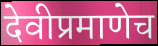
देवीप्रमाणेच